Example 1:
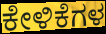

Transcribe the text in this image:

ಕೇಳಿಕೆಗಳ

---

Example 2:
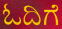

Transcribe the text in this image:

ಓದಿಗೆ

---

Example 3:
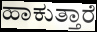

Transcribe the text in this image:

ಹಾಕುತ್ತಾರೆ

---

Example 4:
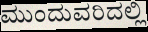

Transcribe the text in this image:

ಮುಂದುವರಿದಲ್ಲಿ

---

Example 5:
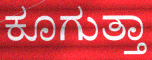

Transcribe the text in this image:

ಕೂಗುತ್ತಾ